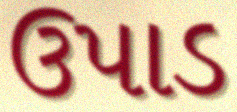
ઉપાડ